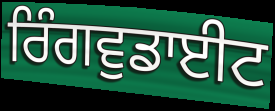
ਰਿੰਗਵੁਡਾਈਟ